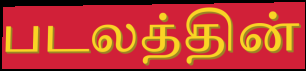
படலத்தின்